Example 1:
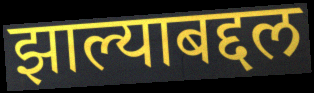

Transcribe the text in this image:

झाल्याबद्दल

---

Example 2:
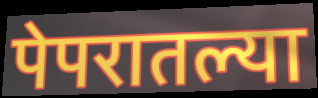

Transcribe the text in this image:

पेपरातल्या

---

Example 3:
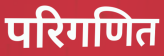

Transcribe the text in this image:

परिगणित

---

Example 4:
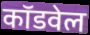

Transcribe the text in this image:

कॉडवेल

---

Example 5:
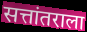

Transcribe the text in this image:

सत्तांतराला